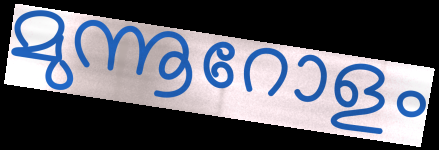
മുന്നൂറോളം